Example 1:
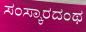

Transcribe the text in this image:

ಸಂಸ್ಕಾರದಂಥ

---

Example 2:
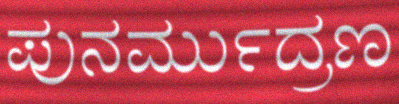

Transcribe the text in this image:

ಪುನರ್ಮುದ್ರಣ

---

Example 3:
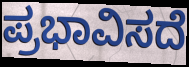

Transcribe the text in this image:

ಪ್ರಭಾವಿಸದೆ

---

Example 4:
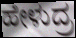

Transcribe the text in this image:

ಹೇಳುದ್ರ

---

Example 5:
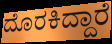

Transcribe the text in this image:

ದೊರಕಿದ್ದಾರೆ